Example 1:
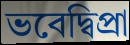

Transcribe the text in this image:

ভবেদ্বিপ্রা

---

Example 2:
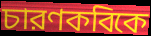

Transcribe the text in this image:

চারণকবিকে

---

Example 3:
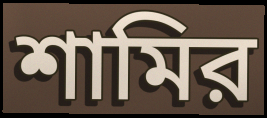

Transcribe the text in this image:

শামির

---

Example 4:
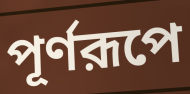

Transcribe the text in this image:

পূর্ণরূপে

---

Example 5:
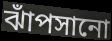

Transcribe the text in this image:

ঝাঁপসানো